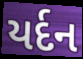
યર્દન